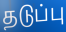
தடுப்பு